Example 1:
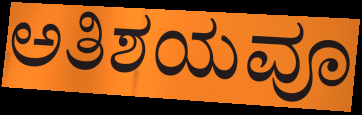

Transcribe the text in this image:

ಅತಿಶಯವೂ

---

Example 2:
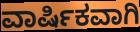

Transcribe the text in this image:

ವಾರ್ಷಿಕವಾಗಿ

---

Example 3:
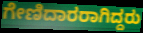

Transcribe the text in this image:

ಗೇಣಿದಾರರಾಗಿದ್ದರು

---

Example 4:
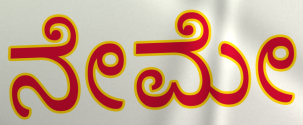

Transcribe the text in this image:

ನೇಮೇ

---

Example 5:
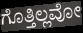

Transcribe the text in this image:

ಗೊತ್ತಿಲ್ಲವೋ